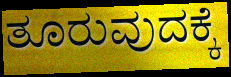
ತೂರುವುದಕ್ಕೆ